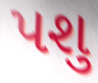
પશુ